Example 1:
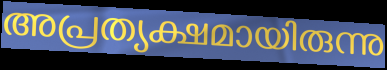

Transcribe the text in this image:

അപ്രത്യക്ഷമായിരുന്നു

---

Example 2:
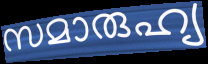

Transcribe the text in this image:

സമാരുഹ്യ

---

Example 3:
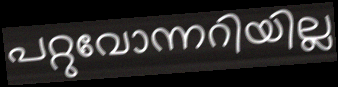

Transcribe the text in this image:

പറ്റുവോന്നറിയില്ല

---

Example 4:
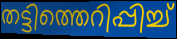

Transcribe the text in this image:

തട്ടിത്തെറിപ്പിച്ച്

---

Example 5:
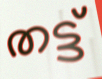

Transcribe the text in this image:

തട്ട്